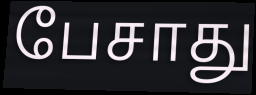
பேசாது